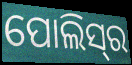
ପୋଲିସ୍‍ର